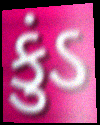
કુંડ